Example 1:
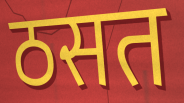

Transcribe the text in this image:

ठसत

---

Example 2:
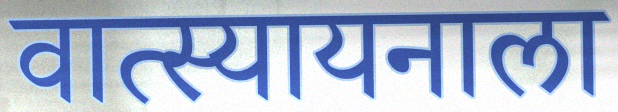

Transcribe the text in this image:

वात्स्यायनाला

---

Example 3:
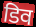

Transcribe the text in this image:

डिव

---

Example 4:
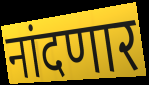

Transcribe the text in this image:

नांदणार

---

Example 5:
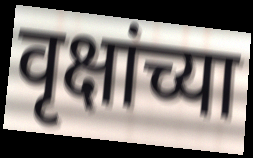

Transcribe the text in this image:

वृक्षांच्या